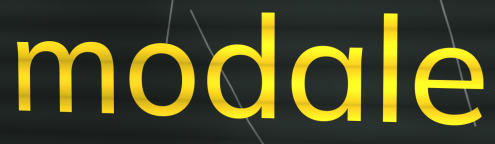
modale